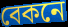
বেকনে